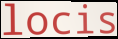
locis